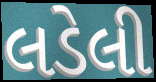
લડેલી